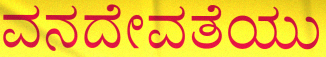
ವನದೇವತೆಯು